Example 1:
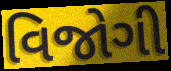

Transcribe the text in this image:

વિજોગી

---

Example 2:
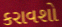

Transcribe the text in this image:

કરાવશો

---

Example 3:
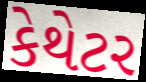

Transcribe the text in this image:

કેથેટર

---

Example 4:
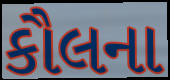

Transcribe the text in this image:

કૌલના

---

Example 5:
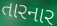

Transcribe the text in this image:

તારનાર